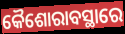
କୈଶୋରାବସ୍ଥାରେ